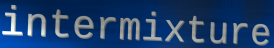
intermixture